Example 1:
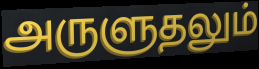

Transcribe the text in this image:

அருளுதலும்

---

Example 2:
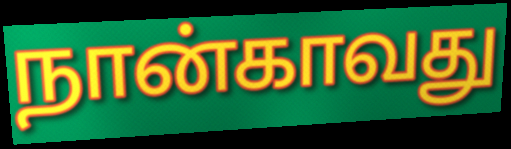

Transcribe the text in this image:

நான்காவது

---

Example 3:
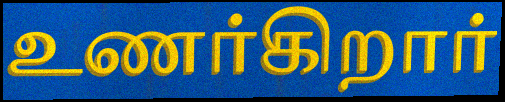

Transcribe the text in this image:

உணர்கிறார்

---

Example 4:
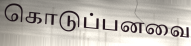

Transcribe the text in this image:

கொடுப்பனவை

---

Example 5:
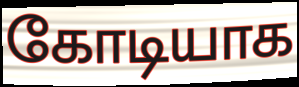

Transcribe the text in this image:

கோடியாக